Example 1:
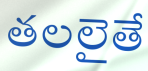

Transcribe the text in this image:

తలలైతే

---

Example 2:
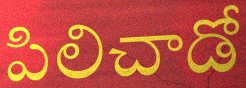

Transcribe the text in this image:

పిలిచాడో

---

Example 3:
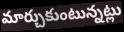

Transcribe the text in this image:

మార్చుకుంటున్నట్లు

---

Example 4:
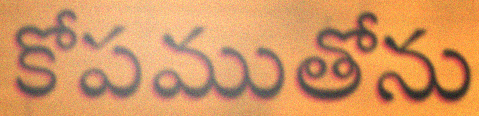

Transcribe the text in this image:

కోపముతోను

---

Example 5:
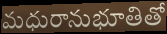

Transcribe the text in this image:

మధురానుభూతితో